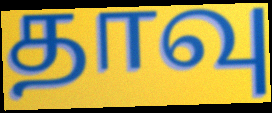
தாவு